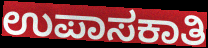
ಉಪಾಸಕಾತಿ